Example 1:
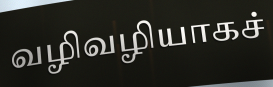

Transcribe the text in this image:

வழிவழியாகச்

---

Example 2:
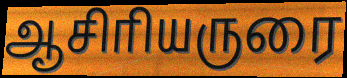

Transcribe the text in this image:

ஆசிரியருரை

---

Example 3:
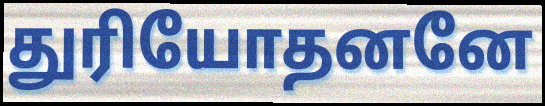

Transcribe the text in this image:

துரியோதனனே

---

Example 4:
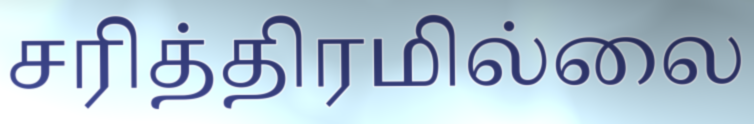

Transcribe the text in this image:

சரித்திரமில்லை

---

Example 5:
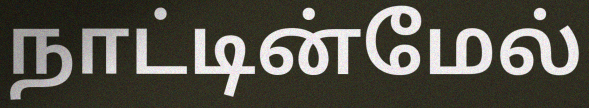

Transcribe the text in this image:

நாட்டின்மேல்